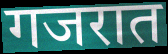
गजरात